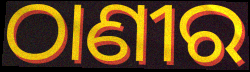
ଠାଣୀର